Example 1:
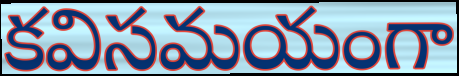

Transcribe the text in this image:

కవిసమయంగా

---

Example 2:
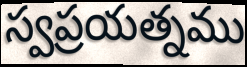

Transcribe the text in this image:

స్వప్రయత్నము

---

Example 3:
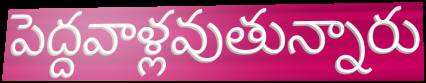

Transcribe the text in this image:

పెద్దవాళ్లవుతున్నారు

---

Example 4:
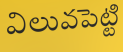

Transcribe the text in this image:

విలువపెట్టి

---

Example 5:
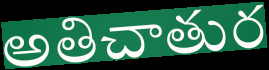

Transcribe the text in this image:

అతిచాతుర